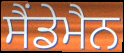
ਸੈਂਡੇਮੈਨ